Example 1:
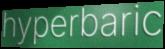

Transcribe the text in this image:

hyperbaric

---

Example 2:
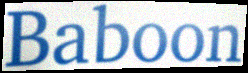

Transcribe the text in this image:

Baboon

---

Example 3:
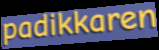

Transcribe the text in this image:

padikkaren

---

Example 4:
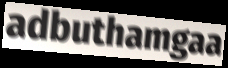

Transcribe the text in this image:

adbuthamgaa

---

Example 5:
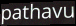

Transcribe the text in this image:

pathavu